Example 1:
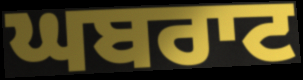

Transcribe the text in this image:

ਘਬਰਾਟ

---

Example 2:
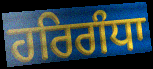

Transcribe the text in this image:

ਹਰਿਗੰਧਾ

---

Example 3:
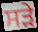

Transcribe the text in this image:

ਸੜੇ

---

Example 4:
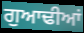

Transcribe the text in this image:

ਗੁਆਢੀਆਂ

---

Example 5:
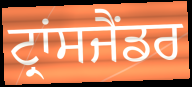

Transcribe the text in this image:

ਟ੍ਰਾਂਸਜੈਂਡਰ